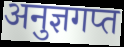
अनुज्ञगप्त